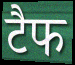
टैफ